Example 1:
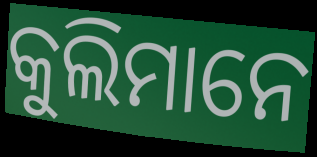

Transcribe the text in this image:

କୁଲିମାନେ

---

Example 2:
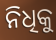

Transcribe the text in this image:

ନିଧିକୁ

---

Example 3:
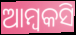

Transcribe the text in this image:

ଆମ୍ବକସି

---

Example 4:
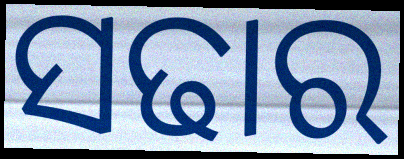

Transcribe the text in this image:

ସଢାର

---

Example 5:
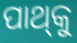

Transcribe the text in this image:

ପାଥ୍‌କୁ